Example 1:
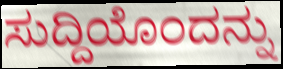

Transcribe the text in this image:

ಸುದ್ದಿಯೊಂದನ್ನು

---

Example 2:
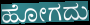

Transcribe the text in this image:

ಹೋಗದು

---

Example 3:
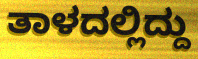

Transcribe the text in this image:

ತಾಳದಲ್ಲಿದ್ದು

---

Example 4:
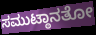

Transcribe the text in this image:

ಸಮುಟ್ಠಾನತೋ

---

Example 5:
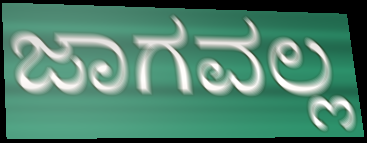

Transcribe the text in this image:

ಜಾಗವಲ್ಲ